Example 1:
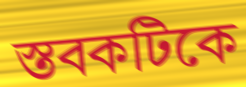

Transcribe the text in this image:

স্তবকটিকে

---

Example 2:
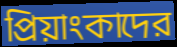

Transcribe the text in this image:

প্রিয়াংকাদের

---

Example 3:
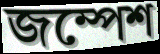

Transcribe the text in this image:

জম্পেশ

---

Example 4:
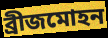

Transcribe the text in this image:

ব্রীজমোহন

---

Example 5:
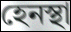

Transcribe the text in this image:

হেনস্থা